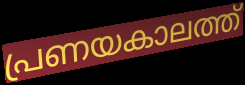
പ്രണയകാലത്ത്